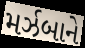
મર્ઝબાને